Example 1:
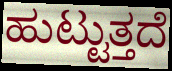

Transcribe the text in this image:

ಹುಟ್ಟುತ್ತದೆ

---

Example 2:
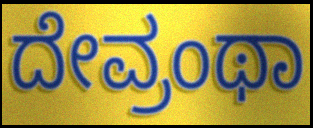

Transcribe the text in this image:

ದೇವ್ರಂಥಾ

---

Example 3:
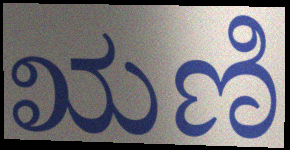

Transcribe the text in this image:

ಋಣಿ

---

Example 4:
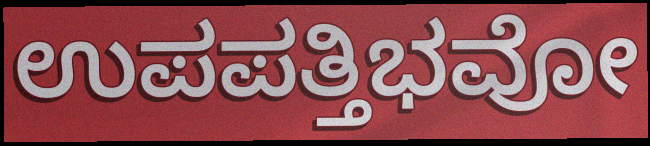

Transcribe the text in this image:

ಉಪಪತ್ತಿಭವೋ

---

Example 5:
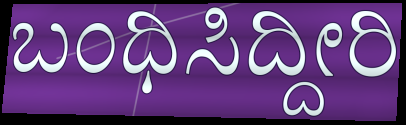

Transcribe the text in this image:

ಬಂಧಿಸಿದ್ದೀರಿ